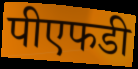
पीएफडी